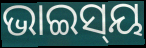
ଭାଇସ୍‌ୟ